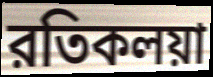
রতিকলয়া